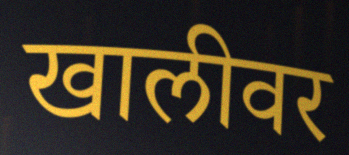
खालीवर